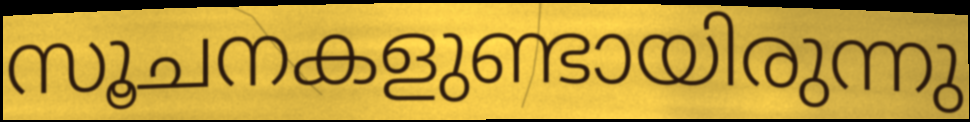
സൂചനകളുണ്ടായിരുന്നു